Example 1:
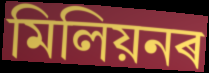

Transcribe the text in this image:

মিলিয়নৰ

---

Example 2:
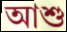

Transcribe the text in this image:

আশু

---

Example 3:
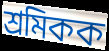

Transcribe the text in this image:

শ্ৰমিকক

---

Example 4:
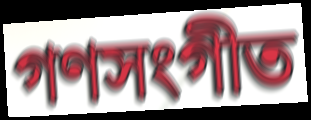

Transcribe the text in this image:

গণসংগীত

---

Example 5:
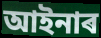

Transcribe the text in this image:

আইনাৰ